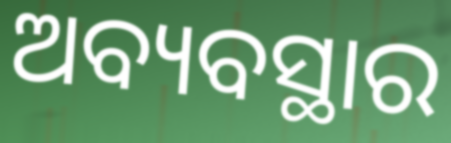
ଅବ୍ୟବସ୍ଥାର